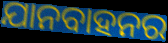
ଯାନବାହନର